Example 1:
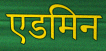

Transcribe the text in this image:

एडमिन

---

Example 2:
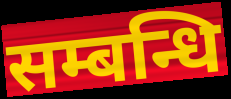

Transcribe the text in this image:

सम्बन्धि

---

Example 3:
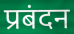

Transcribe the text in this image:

प्रबंदन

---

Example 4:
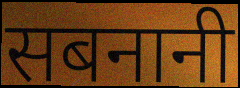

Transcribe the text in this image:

सबनानी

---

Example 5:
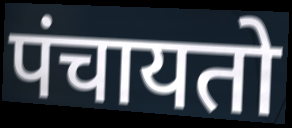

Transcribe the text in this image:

पंचायतो